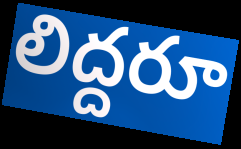
లిద్దరూ